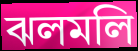
ঝলমলি